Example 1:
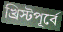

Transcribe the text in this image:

খ্রিস্টপূর্বে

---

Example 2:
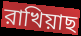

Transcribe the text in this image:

রাখিয়াছ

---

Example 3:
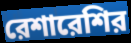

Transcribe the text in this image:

রেশারেশির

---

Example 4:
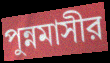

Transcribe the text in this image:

পুন্নমাসীর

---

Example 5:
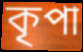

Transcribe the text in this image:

কৃপা